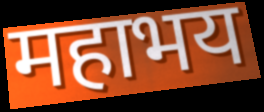
महाभय